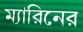
ম্যারিনের